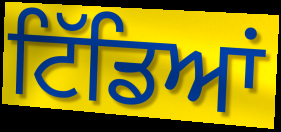
ਟਿੱਡਿਆਂ